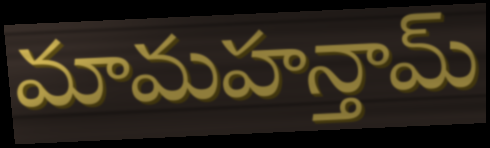
మామహన్తామ్